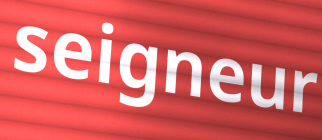
seigneur